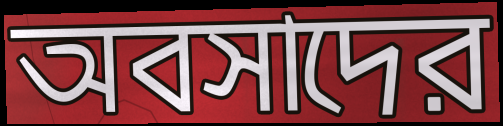
অবসাদের